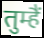
तुम्हैं